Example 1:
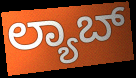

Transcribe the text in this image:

ಲ್ಯಾಬ್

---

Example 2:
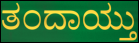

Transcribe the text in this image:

ತಂದಾಯ್ತು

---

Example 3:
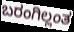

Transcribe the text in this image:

ಬರಂಗಿಲ್ಲಂತ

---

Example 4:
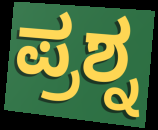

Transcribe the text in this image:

ಪ್ರಶ್ನ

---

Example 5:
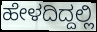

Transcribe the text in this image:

ಹೇಳದಿದ್ದಲ್ಲಿ